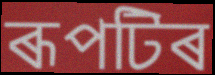
ৰূপটিৰ